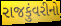
રાજકુંવરીનો